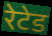
रेटेड